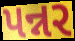
પન્નર